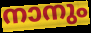
നാനും